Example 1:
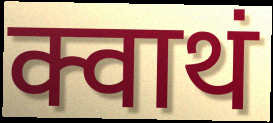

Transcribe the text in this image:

क्वाथं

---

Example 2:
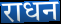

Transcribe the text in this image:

राधन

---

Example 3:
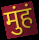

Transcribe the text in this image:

मुंहं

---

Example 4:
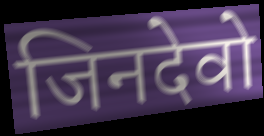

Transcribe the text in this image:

जिनदेवो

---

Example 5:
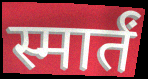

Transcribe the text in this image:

स्मार्तं